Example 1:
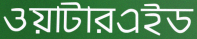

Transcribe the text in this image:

ওয়াটারএইড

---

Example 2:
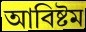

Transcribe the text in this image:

আবিষ্টম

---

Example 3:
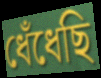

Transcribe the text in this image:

ধেঁধেছি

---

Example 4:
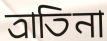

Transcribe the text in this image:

ত্রাতিনা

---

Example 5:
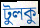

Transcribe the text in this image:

টুলকু